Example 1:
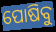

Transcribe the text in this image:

ପୋଷିବୁ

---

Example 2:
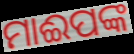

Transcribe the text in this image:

ମାଈପଙ୍କ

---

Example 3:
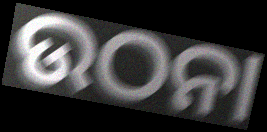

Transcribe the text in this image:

ଉଠନା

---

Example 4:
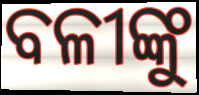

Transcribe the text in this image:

ବଳୀଙ୍କୁ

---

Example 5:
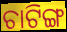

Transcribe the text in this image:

ଚାଟିଙ୍ଗ